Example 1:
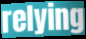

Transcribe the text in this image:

relying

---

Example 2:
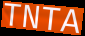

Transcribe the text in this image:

TNTA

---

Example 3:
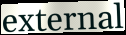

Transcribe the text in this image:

external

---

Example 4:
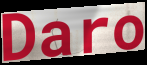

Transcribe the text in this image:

Daro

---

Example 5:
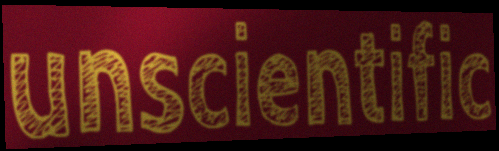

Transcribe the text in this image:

unscientific